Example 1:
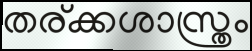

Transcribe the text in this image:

തര്ക്കശാസ്ത്രം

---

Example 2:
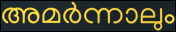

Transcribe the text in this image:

അമർന്നാലും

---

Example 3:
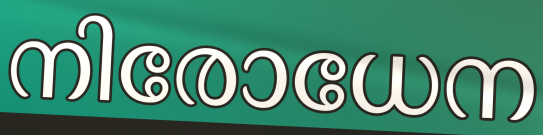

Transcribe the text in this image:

നിരോധേന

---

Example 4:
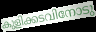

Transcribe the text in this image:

കുളിക്കടവിനോടു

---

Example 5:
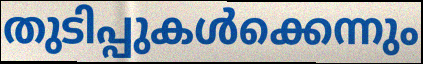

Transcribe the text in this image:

തുടിപ്പുകൾക്കെന്നും